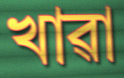
খাৱা